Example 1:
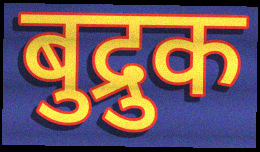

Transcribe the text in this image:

बुद्रुक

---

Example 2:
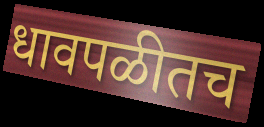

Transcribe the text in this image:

धावपळीतच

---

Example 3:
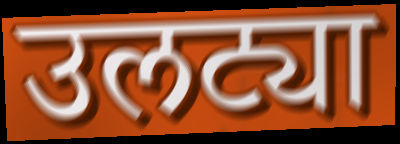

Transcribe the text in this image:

उलट्या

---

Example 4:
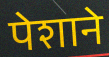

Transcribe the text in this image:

पेशाने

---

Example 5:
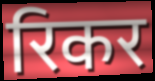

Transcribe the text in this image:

रिकर